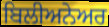
ਬਿਲੀਅਨੇਅਰ